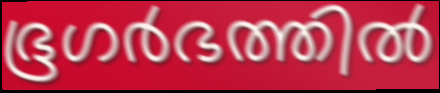
ഭൂഗർഭത്തിൽ